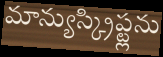
మాన్యుస్క్రిప్ట్లను